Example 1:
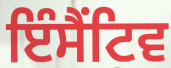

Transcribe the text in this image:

ਇੰਸੈਂਟਿਵ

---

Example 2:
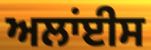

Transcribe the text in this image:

ਅਲਾਂਈਸ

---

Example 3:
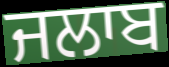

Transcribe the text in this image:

ਜਲਾਬ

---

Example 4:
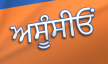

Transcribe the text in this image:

ਅਸੂੰਸੀਓਂ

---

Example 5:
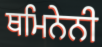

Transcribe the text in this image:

ਥਮਿਨੇਨੀ